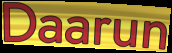
Daarun